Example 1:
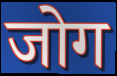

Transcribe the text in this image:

जोग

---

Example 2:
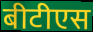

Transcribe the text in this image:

बीटीएस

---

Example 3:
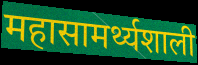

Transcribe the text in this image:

महासामर्थ्यशाली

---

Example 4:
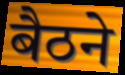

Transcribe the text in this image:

बैठने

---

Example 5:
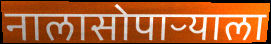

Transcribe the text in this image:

नालासोपाऱ्याला